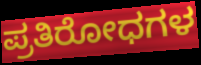
ಪ್ರತಿರೋಧಗಳ